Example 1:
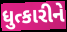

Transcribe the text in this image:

ધુત્કારીને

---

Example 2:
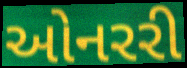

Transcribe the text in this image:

ઓનરરી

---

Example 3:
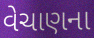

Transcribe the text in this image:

વેચાણના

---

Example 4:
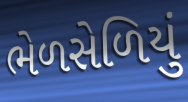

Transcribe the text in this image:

ભેળસેળિયું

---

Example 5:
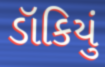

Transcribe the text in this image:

ડૉકિયું